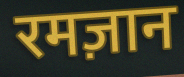
रमज़ान